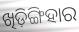
ଖିଡ଼ିଙ୍ଗିହାର